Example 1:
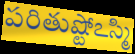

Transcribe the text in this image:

పరితుష్టోఽస్మి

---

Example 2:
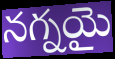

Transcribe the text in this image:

నగ్నయై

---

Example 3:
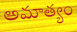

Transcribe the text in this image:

అమాత్యం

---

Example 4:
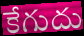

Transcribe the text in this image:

కేగుదు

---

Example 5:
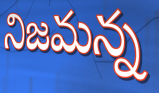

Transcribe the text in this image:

నిజమన్న